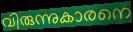
വിരുന്നുകാരനെ